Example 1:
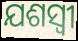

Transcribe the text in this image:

ଯଶସ୍ବୀ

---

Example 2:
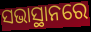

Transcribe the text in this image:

ସଭାସ୍ଥାନରେ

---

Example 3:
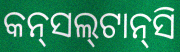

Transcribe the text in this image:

କନ୍‌ସଲ୍‌ଟାନ୍‌ସି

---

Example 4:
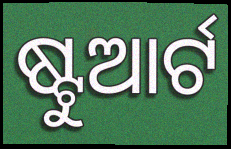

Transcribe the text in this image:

ଷ୍ଟୁଆର୍ଟ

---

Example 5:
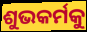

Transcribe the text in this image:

ଶୁଭକର୍ମକୁ